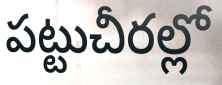
పట్టుచీరల్లో